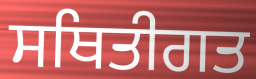
ਸਥਿਤੀਗਤ